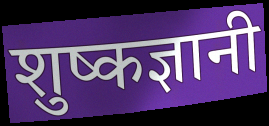
शुष्कज्ञानी